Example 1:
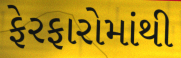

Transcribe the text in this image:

ફેરફારોમાંથી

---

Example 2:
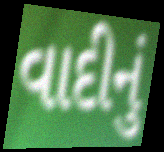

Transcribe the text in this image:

વાદીનું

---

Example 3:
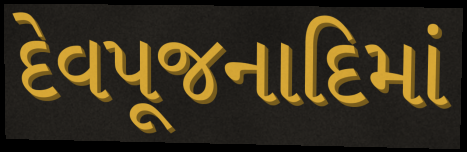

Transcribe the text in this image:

દેવપૂજનાદિમાં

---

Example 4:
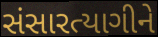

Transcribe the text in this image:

સંસારત્યાગીને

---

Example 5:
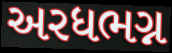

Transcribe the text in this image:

અરધભગ્ન